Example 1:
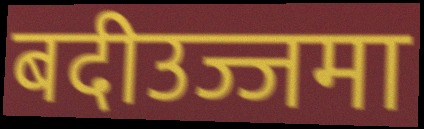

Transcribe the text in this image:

बदीउज्जमा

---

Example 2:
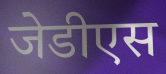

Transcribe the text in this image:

जेडीएस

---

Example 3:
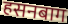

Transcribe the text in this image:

हसनबाग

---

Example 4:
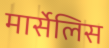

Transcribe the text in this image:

मार्सेलिस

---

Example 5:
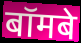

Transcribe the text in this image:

बॉमबे